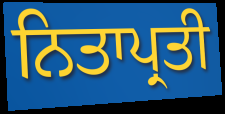
ਨਿਤਾਪ੍ਰਤੀ